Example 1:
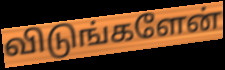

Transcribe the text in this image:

விடுங்களேன்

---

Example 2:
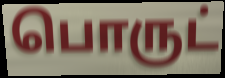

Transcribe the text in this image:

பொருட்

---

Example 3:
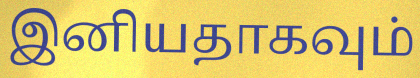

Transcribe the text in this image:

இனியதாகவும்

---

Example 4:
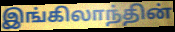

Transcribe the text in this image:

இங்கிலாந்தின்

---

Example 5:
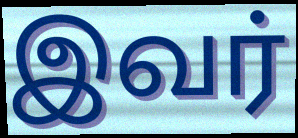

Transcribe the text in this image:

இவர்